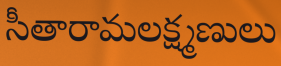
సీతారామలక్ష్మణులు